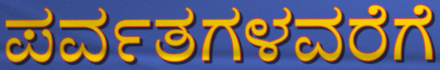
ಪರ್ವತಗಳವರೆಗೆ